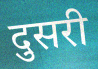
दुसरी